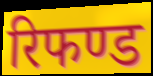
रिफण्ड